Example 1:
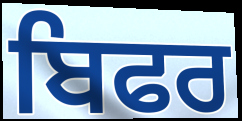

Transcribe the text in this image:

ਬਿਫਰ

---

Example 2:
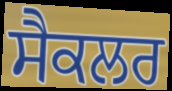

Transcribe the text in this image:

ਸੈਕਲਰ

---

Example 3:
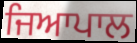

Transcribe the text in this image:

ਜਿਆਪਾਲ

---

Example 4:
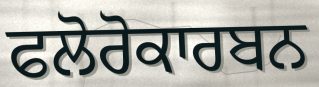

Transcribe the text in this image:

ਫਲੋਰੋਕਾਰਬਨ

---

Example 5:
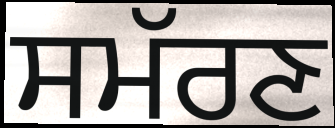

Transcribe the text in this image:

ਸਮੱਰਣ